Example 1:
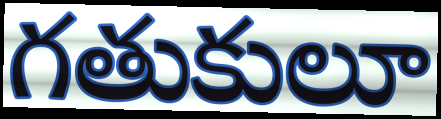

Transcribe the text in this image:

గతుకులూ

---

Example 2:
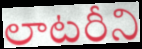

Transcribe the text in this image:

లాటరీని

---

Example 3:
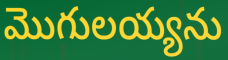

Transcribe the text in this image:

మొగులయ్యను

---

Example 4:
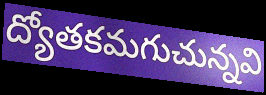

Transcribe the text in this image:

ద్యోతకమగుచున్నవి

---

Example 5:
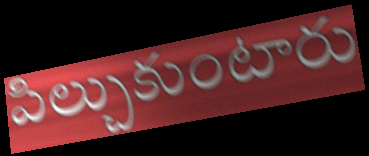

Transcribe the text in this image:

పిల్చుకుంటారు